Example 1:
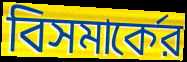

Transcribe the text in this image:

বিসমার্কের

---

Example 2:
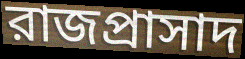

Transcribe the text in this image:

রাজপ্রাসাদ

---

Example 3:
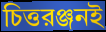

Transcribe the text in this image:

চিত্তরঞ্জনই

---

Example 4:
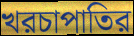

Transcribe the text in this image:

খরচাপাতির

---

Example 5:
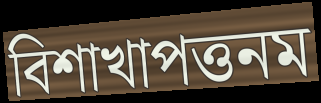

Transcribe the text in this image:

বিশাখাপত্তনম